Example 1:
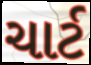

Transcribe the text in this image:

ચાર્ટ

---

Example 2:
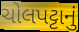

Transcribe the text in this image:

ચોલપટ્ટાનું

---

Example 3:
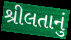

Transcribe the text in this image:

શ્રીલતાનું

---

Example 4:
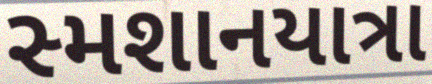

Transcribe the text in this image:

સ્મશાનયાત્રા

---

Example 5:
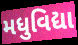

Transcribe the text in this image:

મધુવિદ્યા